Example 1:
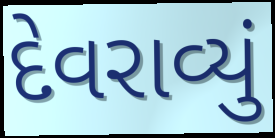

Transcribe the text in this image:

દેવરાવ્યું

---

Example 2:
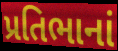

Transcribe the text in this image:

પ્રતિભાનાં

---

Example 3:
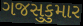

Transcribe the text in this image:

ગજસુકુમાર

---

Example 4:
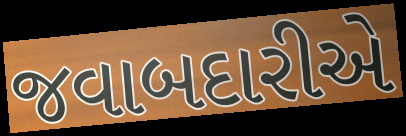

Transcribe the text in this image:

જવાબદારીએ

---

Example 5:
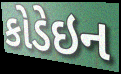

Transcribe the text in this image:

કોડેઇન